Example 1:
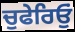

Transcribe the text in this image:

ਚੁਫੇਰਿਓੁਂ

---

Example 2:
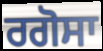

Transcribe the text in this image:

ਰਗੋਸਾ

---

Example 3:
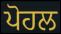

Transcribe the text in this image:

ਪੋਹਲ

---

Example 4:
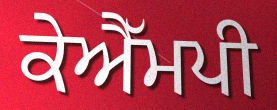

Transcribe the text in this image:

ਕੇਐੱਮਪੀ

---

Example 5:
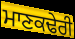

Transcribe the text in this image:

ਮਾਣਕਢੇਰੀ